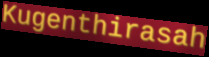
Kugenthirasah